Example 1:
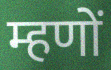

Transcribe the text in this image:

म्हणों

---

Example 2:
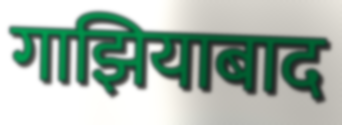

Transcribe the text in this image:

गाझियाबाद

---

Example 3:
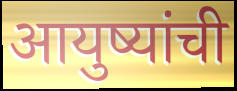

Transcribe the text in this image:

आयुष्यांची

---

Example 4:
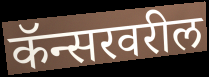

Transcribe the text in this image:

कॅन्सरवरील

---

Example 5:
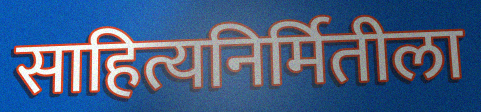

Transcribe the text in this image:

साहित्यनिर्मितीला